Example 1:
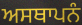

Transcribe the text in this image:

ਅਸਥਾਪਨੰ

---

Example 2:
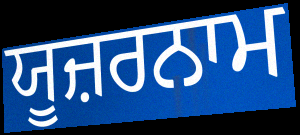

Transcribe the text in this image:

ਯੂਜ਼ਰਨਾਮ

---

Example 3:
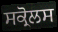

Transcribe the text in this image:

ਸਕ੍ਰੋਲਸ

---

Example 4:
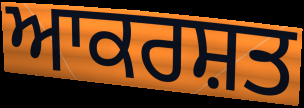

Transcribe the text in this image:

ਆਕਰਸ਼ਤ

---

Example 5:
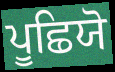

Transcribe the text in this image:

ਪੂਛਿਯੋ